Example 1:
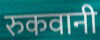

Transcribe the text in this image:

रुकवानी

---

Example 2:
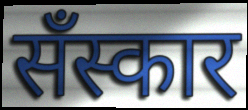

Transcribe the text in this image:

सँस्कार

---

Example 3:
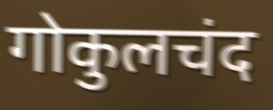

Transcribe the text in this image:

गोकुलचंद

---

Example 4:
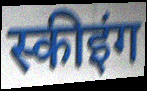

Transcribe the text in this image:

स्कीइंग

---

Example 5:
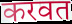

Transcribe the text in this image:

करवत